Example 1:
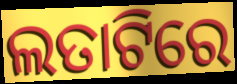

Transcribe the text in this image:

ଲତାଟିରେ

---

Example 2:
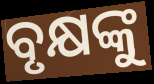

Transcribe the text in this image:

ବୃକ୍ଷଙ୍କୁ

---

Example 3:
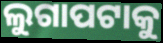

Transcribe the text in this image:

ଲୁଗାପଟାକୁ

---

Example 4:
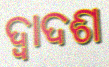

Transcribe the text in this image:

ଦ୍ଵାଦଶ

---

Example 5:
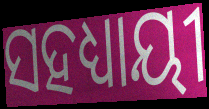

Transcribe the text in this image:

ସହଧ୍ୟାୟୀ